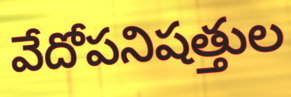
వేదోపనిషత్తుల